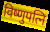
विष्णुपत्नि